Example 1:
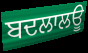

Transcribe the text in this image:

ਬਦਲਾਲਊ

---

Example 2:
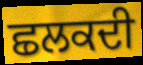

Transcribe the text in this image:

ਛਲਕਦੀ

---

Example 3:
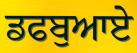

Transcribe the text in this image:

ਡਫਬੁਆਏ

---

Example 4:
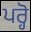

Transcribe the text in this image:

ਪਰ੍ਹੋ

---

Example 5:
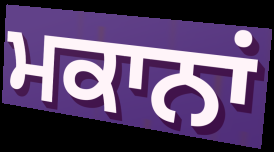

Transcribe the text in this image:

ਮਕਾਨਾਂ